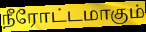
நீரோட்டமாகும்